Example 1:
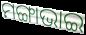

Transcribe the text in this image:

ମଙ୍ଗାଭାଇ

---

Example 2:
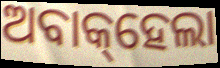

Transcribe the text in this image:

ଅବାକ୍‌ହେଲା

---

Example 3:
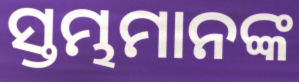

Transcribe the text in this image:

ସ୍ତମ୍ଭମାନଙ୍କ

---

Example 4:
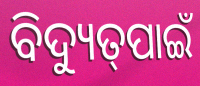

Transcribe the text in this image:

ବିଦ୍ୟୁତ୍‌ପାଇଁ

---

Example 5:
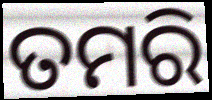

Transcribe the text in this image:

ତମରି